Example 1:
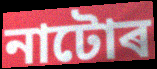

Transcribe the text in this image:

নাটোৰ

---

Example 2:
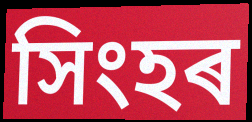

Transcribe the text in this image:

সিংহৰ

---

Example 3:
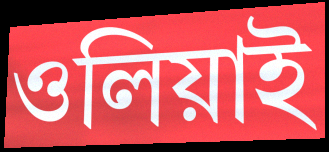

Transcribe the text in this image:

ওলিয়াই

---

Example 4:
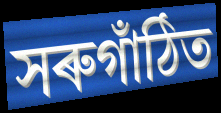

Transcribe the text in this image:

সৰুগাঁঠিত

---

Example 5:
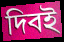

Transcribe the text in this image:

দিবই